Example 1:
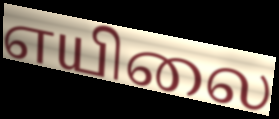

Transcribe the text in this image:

எயிலை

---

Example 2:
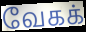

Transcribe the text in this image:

வேகக்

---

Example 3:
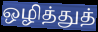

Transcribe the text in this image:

ஒழித்துத்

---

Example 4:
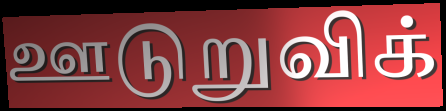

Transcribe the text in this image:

ஊடுறுவிக்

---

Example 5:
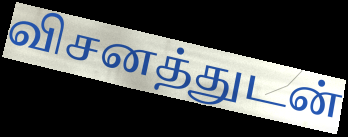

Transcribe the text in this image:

விசனத்துடன்